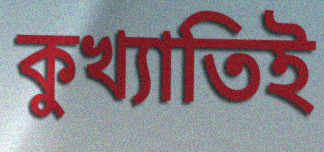
কুখ্যাতিই